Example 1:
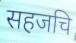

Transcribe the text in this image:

सहजचि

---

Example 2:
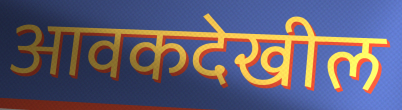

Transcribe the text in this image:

आवकदेखील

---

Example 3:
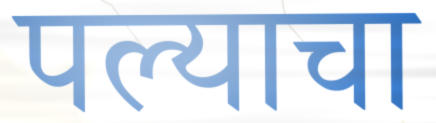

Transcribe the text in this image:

पल्याचा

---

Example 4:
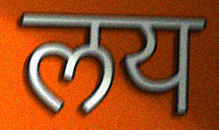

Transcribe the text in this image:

लय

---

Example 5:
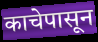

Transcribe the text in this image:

काचेपासून